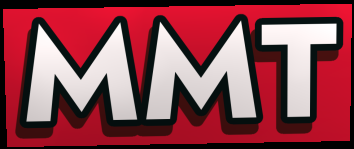
MMT